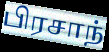
பிரசாந்